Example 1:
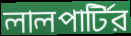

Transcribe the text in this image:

লালপার্টির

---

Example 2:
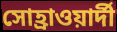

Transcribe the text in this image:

সোহ্রাওয়ার্দী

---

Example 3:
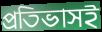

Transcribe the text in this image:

প্রতিভাসই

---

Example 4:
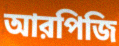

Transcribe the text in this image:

আরপিজি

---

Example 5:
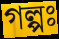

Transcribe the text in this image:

গল্পঃ